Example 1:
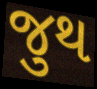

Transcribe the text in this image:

જુથ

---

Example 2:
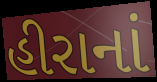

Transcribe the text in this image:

હીરાનાં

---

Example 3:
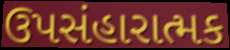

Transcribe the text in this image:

ઉપસંહારાત્મક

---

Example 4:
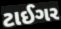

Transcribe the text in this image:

ટાઈગર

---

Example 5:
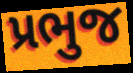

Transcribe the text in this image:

પ્રભુજ